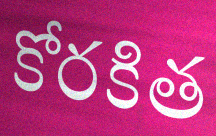
కోరకిత